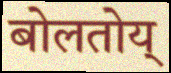
बोलतोय्